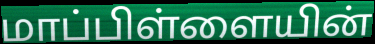
மாப்பிள்ளையின்